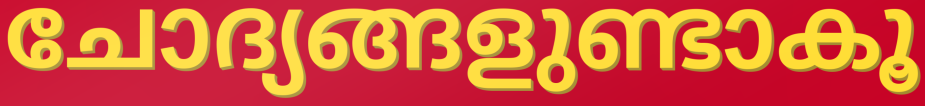
ചോദ്യങ്ങളുണ്ടാകൂ